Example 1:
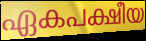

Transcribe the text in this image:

ഏകപക്ഷീയ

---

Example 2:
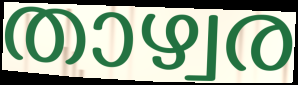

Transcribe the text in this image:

താഴ്വര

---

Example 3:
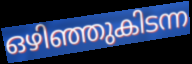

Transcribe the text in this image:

ഒഴിഞ്ഞുകിടന്ന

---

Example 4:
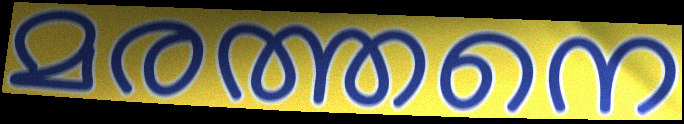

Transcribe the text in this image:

മരത്തനെ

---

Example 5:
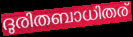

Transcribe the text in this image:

ദുരിതബാധിതര്